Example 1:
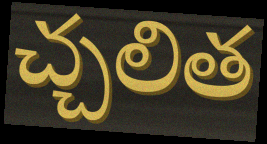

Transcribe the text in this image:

చ్చలిత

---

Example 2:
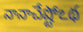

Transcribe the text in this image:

నానాచేష్టోఽథ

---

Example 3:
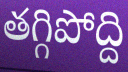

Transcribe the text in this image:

తగ్గిపోద్ది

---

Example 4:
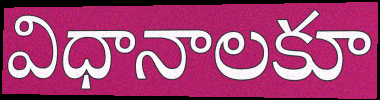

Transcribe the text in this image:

విధానాలకూ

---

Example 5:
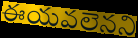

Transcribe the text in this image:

ఈయవలెనని